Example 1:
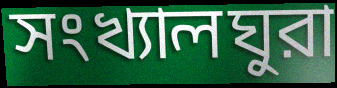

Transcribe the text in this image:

সংখ্যালঘুরা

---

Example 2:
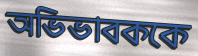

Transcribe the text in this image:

অভিভাবককে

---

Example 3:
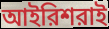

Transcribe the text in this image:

আইরিশরাই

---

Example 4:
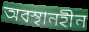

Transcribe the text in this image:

অবস্থানহীন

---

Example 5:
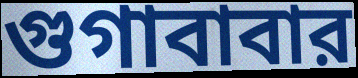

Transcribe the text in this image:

গুগাবাবার